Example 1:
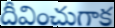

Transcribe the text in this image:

దీవించుగాక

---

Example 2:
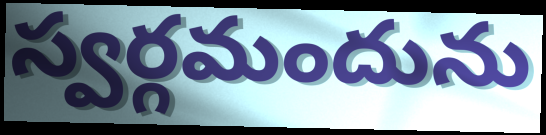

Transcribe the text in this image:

స్వర్గమందును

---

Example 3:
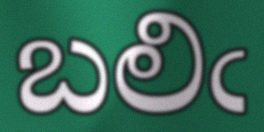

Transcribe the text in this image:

బలిఁ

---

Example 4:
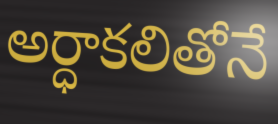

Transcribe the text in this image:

అర్ధాకలితోనే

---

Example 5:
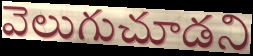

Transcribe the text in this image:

వెలుగుచూడని